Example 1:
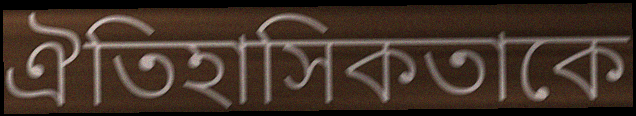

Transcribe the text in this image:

ঐতিহাসিকতাকে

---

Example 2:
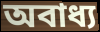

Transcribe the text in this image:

অবাধ্য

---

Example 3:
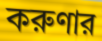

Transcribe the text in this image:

করুণার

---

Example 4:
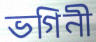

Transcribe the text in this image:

ভগিনী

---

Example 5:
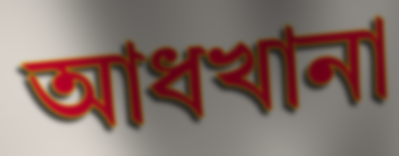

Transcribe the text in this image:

আধখানা